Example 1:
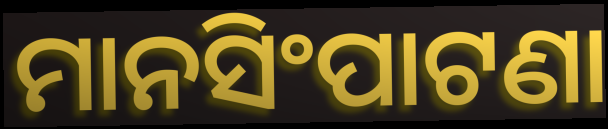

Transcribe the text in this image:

ମାନସିଂପାଟଣା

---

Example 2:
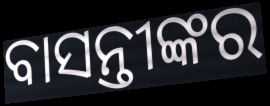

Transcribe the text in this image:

ବାସନ୍ତୀଙ୍କର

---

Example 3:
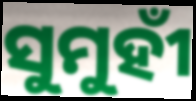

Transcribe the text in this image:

ସୁମୁହୀଁ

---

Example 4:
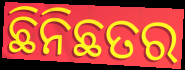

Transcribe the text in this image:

ଛିନିଛତର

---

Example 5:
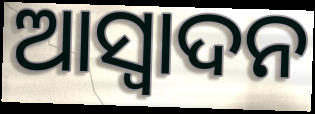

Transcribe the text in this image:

ଆସ୍ୱାଦନ